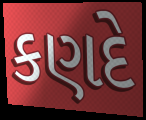
કણદે